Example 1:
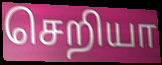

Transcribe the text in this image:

செறியா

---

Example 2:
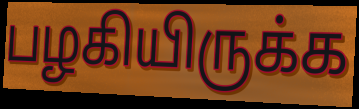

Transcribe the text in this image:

பழகியிருக்க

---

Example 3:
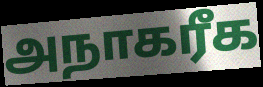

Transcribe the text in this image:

அநாகரீக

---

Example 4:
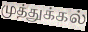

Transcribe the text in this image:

முத்துக்கல்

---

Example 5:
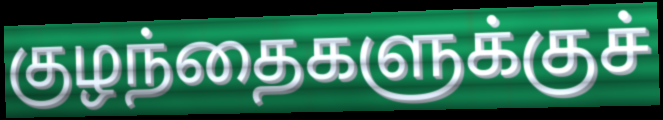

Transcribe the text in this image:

குழந்தைகளுக்குச்